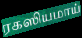
ரகஸியமாய்